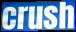
crush